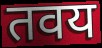
तवय